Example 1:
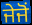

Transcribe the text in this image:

ਜੇਜੋਂ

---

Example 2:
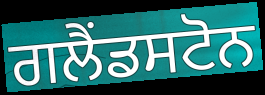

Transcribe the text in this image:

ਗਲੈਂਡਸਟੋਨ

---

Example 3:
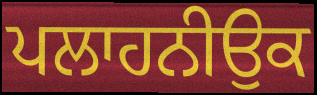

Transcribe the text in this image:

ਪਲਾਹਨੀਉਕ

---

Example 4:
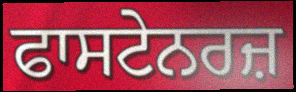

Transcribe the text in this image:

ਫਾਸਟੇਨਰਜ਼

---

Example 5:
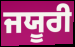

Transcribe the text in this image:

ਜਯੂਰੀ